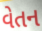
વેતન